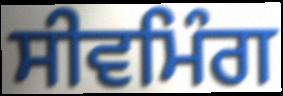
ਸੀਵਮਿੰਗ